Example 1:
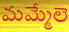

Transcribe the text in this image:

మమ్మేలె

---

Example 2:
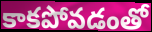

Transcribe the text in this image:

కాకపోవడంతో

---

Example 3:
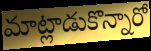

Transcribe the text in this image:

మాట్లాడుకొన్నారో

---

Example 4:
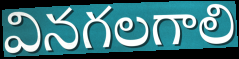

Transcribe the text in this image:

వినగలగాలి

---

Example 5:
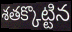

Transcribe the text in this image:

శతక్కొట్టిన